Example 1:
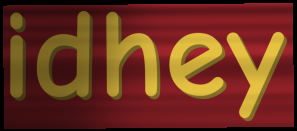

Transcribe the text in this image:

idhey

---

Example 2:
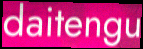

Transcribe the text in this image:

daitengu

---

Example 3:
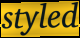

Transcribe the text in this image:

styled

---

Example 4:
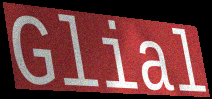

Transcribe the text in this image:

Glial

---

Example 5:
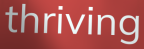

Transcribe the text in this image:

thriving